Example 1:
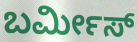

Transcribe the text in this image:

ಬರ್ಮೀಸ್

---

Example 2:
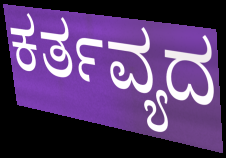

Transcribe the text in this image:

ಕರ್ತವ್ಯದ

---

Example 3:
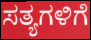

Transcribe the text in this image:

ಸತ್ಯಗಳಿಗೆ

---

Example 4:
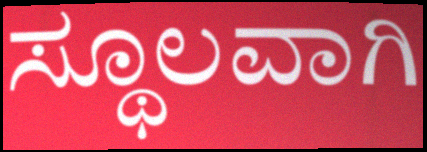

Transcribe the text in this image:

ಸ್ಥೂಲವಾಗಿ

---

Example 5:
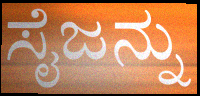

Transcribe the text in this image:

ಸೈಜನ್ನು